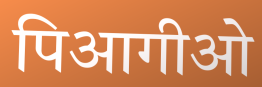
पिआगीओ